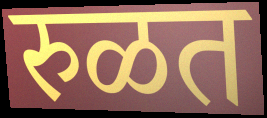
रुळत